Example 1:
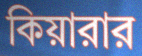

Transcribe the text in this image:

কিয়ারার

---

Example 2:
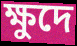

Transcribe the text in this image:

ক্ষুদে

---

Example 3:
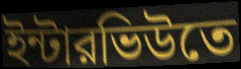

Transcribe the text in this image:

ইন্টারভিউতে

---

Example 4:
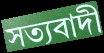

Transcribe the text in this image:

সত্যবাদী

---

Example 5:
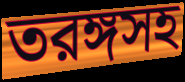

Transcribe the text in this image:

তরঙ্গসহ